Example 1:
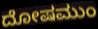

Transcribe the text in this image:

ದೋಷಮುಂ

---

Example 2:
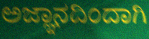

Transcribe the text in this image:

ಅಜ್ಞಾನದಿಂದಾಗಿ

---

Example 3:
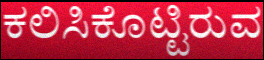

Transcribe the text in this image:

ಕಲಿಸಿಕೊಟ್ಟಿರುವ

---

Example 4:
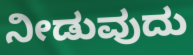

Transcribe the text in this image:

ನೀಡುವುದು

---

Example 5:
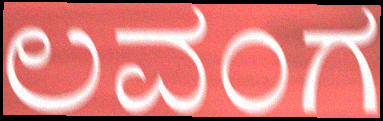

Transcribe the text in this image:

ಲವಂಗ